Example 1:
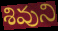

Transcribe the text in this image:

శివుని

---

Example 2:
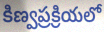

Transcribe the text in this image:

కిణ్వప్రక్రియలో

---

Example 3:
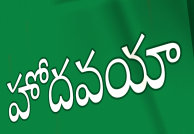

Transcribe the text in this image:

హోదవయా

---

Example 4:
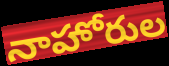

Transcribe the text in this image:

నాహోరుల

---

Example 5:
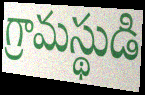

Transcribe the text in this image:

గ్రామస్థుడి